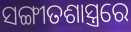
ସଙ୍ଗୀତଶାସ୍ତ୍ରରେ